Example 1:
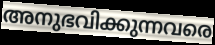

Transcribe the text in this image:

അനുഭവിക്കുന്നവരെ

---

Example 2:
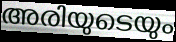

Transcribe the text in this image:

അരിയുടെയും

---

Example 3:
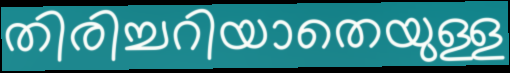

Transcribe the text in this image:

തിരിച്ചറിയാതെയുള്ള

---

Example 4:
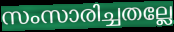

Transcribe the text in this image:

സംസാരിച്ചതല്ലേ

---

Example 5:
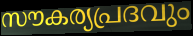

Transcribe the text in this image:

സൗകര്യപ്രദവും